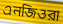
এনজিওরা